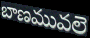
బాణమువలె